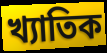
খ্যাতিক